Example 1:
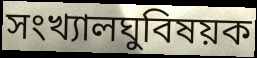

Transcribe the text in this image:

সংখ্যালঘুবিষয়ক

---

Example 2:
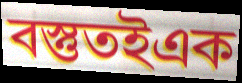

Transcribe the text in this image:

বস্তুতইএক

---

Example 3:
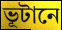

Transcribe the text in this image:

ভূটানে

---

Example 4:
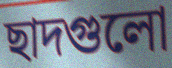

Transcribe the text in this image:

ছাদগুলো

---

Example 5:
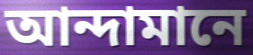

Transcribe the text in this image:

আন্দামানে